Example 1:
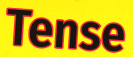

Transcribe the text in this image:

Tense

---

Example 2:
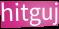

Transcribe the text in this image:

hitguj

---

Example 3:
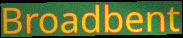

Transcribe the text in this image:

Broadbent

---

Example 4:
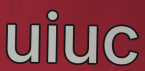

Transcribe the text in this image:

uiuc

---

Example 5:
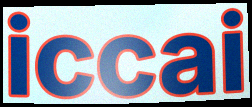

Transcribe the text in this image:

iccai